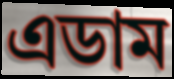
এডাম